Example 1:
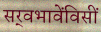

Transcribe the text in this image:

सर्वभावेंविसीं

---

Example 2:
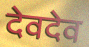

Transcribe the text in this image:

देवदेव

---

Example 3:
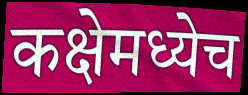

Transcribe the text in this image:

कक्षेमध्येच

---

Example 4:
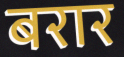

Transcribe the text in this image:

बरार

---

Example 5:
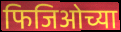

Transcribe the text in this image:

फिजिओच्या